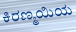
ಕಿರಣ್ಮಯಿಯ